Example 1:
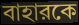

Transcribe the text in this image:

বাহারকে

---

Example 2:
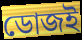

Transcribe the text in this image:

ডোজই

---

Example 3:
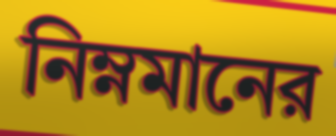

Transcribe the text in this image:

নিম্নমানের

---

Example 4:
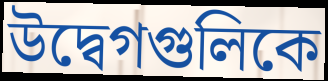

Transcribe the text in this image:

উদ্বেগগুলিকে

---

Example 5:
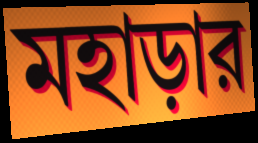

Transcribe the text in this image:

মহাড়ার